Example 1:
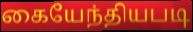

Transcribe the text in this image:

கையேந்தியபடி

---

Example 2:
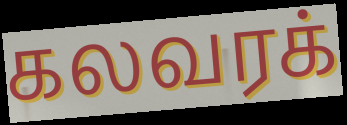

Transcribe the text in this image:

கலவரக்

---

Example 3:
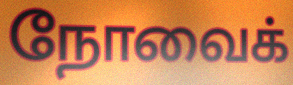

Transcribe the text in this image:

நோவைக்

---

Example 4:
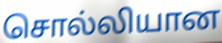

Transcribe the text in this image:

சொல்லியான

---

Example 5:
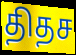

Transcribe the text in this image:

திதச